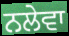
ਨਲੇਵਾ